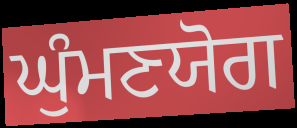
ਘੁੰਮਣਯੋਗ